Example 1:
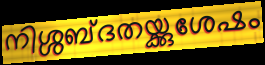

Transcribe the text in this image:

നിശ്ശബ്ദതയ്ക്കുശേഷം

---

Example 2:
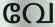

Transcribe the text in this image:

വേ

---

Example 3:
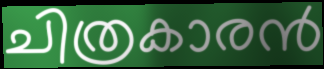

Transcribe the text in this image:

ചിത്രകാരൻ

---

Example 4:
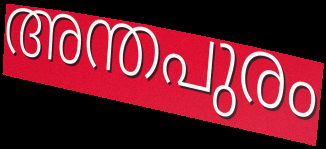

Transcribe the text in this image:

അന്തപുരം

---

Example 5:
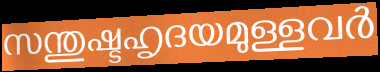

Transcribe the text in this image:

സന്തുഷ്ടഹൃദയമുള്ളവർ